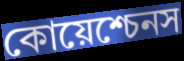
কোয়েশ্চেনস